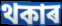
থকাৰ